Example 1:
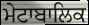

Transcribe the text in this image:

ਮੇਟਾਬਾਲਿਕ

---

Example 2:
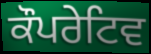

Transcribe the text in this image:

ਕੌਪਰੇਟਿਵ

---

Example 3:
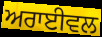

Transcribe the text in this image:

ਅਰਾਈਵਲ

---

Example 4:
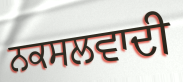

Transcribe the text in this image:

ਨਕਸਲਵਾਦੀ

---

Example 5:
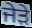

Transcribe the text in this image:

ਜੇੜੇ